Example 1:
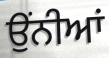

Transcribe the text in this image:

ਉੰਨੀਆਂ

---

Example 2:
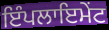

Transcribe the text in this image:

ਇੰਪਲਾਇਮੇਂਟ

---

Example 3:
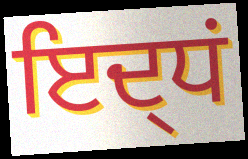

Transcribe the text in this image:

ਇਦ੍ਧਂ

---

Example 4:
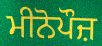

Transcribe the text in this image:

ਮੀਨੋਪੌਜ਼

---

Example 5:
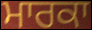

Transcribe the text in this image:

ਮਾਰਕਾ